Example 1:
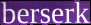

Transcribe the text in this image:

berserk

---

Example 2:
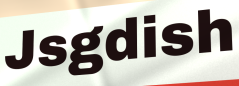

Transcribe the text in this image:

Jsgdish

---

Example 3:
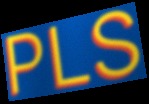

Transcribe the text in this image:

PLS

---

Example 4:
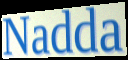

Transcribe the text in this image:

Nadda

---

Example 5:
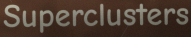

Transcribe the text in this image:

Superclusters